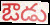
ఔడు